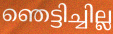
ഞെട്ടിച്ചില്ല